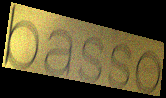
basso